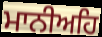
ਮਾਨੀਅਹਿ